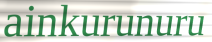
ainkurunuru